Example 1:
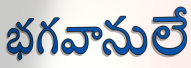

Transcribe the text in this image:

భగవానులే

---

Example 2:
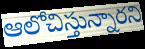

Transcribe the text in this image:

ఆలోచిస్తున్నారని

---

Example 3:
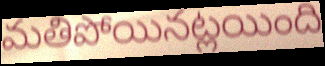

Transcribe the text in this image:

మతిపోయినట్లయింది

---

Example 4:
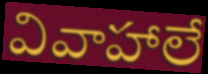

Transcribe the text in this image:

వివాహాలే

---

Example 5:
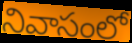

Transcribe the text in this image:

నివాసంలో